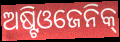
ଅଷ୍ଟିଓଜେନିକ୍